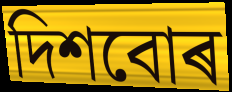
দিশবোৰ